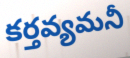
కర్తవ్యమనీ